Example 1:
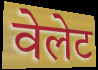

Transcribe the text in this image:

वेलेट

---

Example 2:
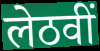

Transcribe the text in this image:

लेठवीं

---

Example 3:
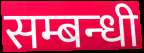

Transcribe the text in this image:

सम्‍बन्‍धी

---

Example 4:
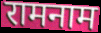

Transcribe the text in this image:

रामनाम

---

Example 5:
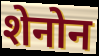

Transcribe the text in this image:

शेनोन